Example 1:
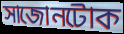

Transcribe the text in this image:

সাজোনটোক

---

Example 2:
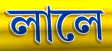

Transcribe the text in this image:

লালে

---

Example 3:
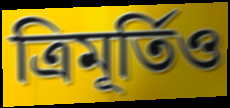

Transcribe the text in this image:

ত্ৰিমূৰ্তিও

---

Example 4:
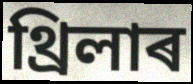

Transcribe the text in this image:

থ্ৰিলাৰ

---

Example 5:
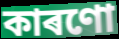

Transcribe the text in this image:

কাৰণো